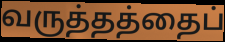
வருத்தத்தைப்